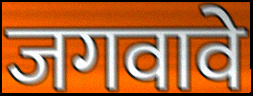
जगवावे